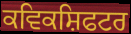
ਕਵਿਕਸ਼ਿਫਟਰ